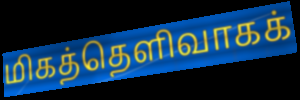
மிகத்தெளிவாகக்